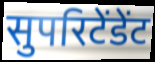
सुपरिटेंडेंट